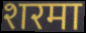
शरमा